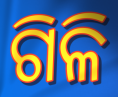
ଗିଳି